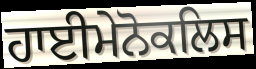
ਹਾਈਮੇਨੋਕਲਿਸ